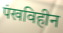
पंखविहीन